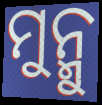
ମୁନ୍ମୁ